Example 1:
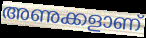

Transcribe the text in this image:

അണുക്കളാണ്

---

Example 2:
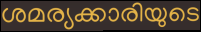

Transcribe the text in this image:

ശമര്യക്കാരിയുടെ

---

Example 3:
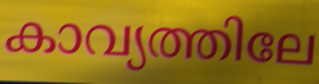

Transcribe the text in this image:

കാവ്യത്തിലേ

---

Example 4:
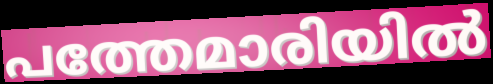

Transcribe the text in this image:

പത്തേമാരിയിൽ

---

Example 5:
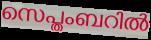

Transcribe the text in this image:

സെപ്തംബറിൽ